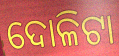
ଦୋଳିଟା